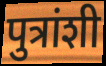
पुत्रांशी